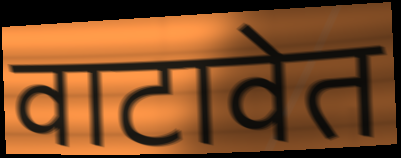
वाटावेत